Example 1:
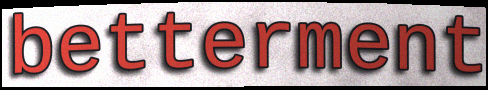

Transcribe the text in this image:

betterment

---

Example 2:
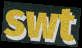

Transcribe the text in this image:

swt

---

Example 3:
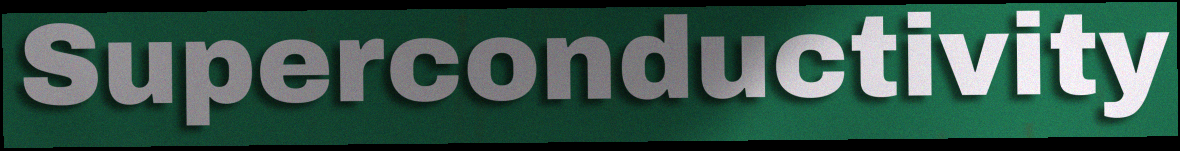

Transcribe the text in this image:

Superconductivity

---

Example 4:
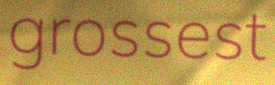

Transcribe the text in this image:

grossest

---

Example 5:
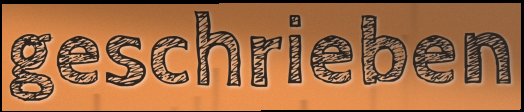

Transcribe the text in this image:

geschrieben